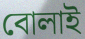
বোলাই